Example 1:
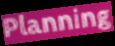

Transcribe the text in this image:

Planning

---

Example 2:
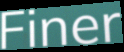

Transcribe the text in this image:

Finer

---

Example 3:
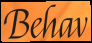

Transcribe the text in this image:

Behav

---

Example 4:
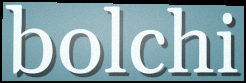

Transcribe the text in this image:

bolchi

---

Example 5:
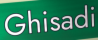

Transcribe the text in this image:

Ghisadi